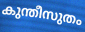
കുന്തീസുതം